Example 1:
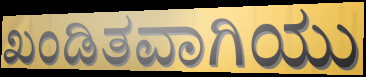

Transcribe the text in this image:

ಖಂಡಿತವಾಗಿಯು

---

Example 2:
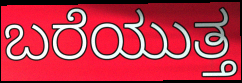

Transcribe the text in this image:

ಬರೆಯುತ್ತ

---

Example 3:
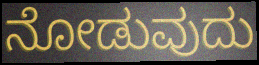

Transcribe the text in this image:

ನೋಡುವುದು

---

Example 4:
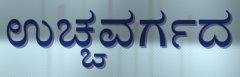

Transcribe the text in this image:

ಉಚ್ಚವರ್ಗದ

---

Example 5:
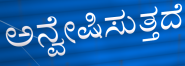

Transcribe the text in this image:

ಅನ್ವೇಷಿಸುತ್ತದೆ